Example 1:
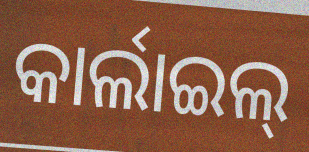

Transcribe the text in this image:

କାର୍ଲାଇଲ୍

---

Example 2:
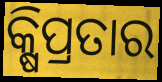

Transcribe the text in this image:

କ୍ଷିପ୍ରତାର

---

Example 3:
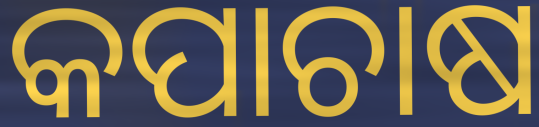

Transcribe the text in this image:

କପାଚାଷ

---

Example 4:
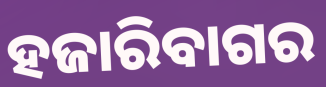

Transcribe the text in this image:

ହଜାରିବାଗର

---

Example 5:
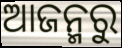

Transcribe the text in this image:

ଆଜନ୍ମରୁ